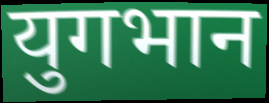
युगभान